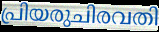
പ്രിയരുചിരവതി